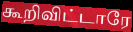
கூறிவிட்டாரே